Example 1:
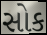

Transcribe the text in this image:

સોક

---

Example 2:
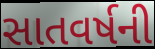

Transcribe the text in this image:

સાતવર્ષની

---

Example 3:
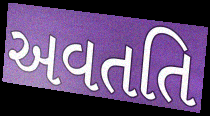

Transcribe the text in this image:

અવતતિ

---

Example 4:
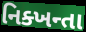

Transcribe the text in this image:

નિક્ખન્તા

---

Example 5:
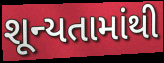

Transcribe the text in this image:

શૂન્યતામાંથી